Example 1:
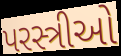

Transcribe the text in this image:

પરસ્ત્રીઓ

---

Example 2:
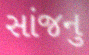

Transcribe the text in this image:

સાંજનુ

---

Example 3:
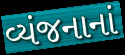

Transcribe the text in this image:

વ્યંજનાનાં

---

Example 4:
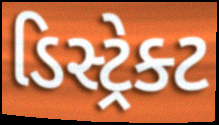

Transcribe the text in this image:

ડિસ્ટ્રેક્ટ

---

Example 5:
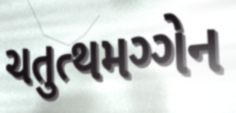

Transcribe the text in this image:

ચતુત્થમગ્ગેન